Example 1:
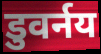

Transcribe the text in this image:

डुवर्नय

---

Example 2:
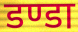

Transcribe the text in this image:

डण्डा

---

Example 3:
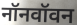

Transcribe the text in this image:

नॉनवॉवन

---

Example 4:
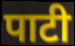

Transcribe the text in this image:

पाटी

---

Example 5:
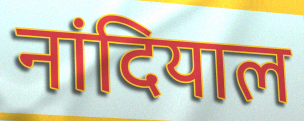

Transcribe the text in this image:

नांदियाल